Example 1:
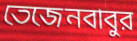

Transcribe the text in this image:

তেজেনবাবুর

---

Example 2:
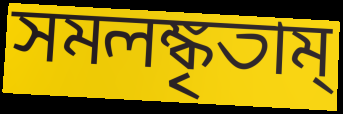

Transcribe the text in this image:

সমলঙ্কৃতাম্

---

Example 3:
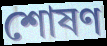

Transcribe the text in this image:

শোষণ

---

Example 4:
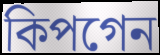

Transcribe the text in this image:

কিপগেন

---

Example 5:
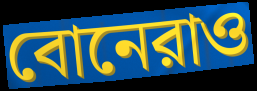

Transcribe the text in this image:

বোনেরাও